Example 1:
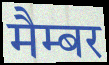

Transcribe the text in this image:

मैम्बर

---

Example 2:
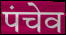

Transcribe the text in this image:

पंचेव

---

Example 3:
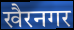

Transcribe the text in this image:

खैरनगर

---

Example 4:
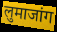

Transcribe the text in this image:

लुमाजांग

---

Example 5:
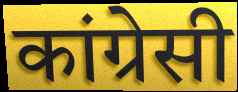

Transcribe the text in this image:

कांग्रेसी